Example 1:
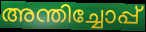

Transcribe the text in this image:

അന്തിച്ചോപ്പ്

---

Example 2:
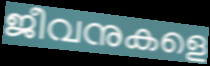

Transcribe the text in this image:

ജീവനുകളെ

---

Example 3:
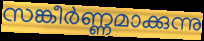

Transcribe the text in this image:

സങ്കീർണ്ണമാക്കുന്നു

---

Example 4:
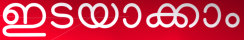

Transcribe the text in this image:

ഇടയാക്കാം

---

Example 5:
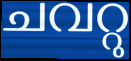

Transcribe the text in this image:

ചവറ്റു